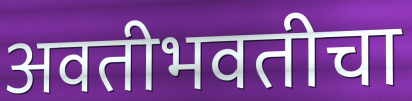
अवतीभवतीचा